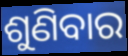
ଶୁଣିବାର